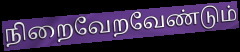
நிறைவேறவேண்டும்